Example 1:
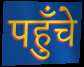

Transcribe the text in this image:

पहुँचे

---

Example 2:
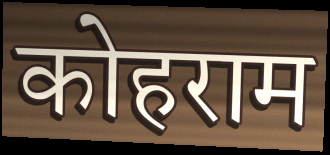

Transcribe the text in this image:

कोहराम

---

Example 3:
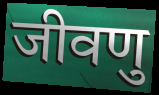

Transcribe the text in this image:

जीवणु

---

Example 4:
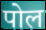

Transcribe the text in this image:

पोल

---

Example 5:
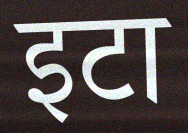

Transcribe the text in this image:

इटा